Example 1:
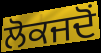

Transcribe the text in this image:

ਲੋਕਜਦੋਂ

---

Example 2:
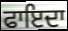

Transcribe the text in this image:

ਫਾਇਦਾ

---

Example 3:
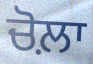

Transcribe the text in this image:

ਚੋਲ਼ਾ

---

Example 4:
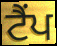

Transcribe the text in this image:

ਟੈਂਪ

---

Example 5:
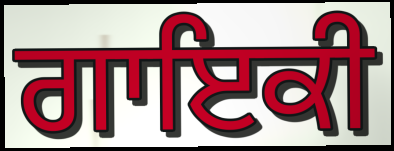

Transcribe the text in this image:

ਗਾਇਕੀ